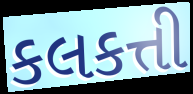
કલકત્તી